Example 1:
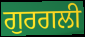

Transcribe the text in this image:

ਗੁਰਗਲੀ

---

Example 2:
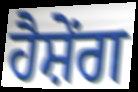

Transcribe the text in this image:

ਹੈਸ਼ੇਂਗ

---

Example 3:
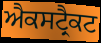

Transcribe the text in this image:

ਐਕਸਟ੍ਰੈਕਟ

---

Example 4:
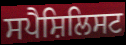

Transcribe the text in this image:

ਸਪੈਸ਼ਿਲਿਸਟ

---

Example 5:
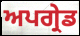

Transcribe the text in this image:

ਅਪਗ੍ਰੇਡ